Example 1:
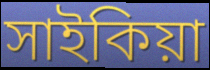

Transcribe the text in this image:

সাইকিয়া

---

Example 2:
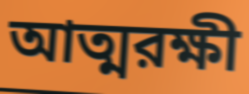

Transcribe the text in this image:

আত্মরক্ষী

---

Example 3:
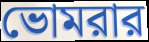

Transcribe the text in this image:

ভোমরার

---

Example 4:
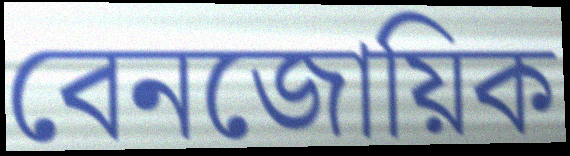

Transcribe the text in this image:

বেনজোয়িক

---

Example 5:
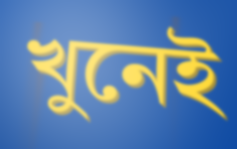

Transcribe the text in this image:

খুনেই